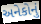
અનેકોનું